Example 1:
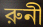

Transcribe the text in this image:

রুনী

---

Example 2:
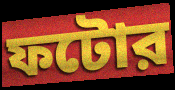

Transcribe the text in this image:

ফটোর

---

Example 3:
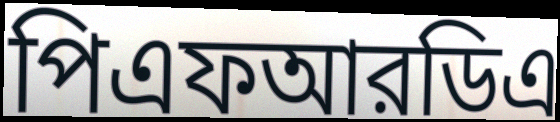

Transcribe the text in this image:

পিএফআরডিএ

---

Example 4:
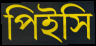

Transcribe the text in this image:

পিইসি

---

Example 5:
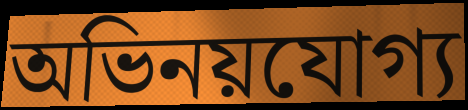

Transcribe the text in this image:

অভিনয়যোগ্য